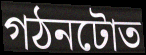
গঠনটোত